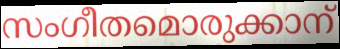
സംഗീതമൊരുക്കാന്